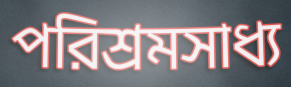
পরিশ্রমসাধ্য